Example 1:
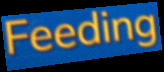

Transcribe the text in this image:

Feeding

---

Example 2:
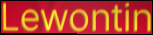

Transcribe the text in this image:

Lewontin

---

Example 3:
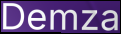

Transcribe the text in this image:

Demza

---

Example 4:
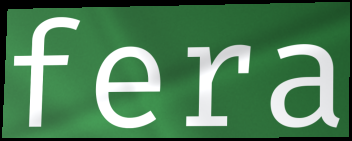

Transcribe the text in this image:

fera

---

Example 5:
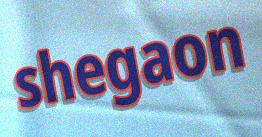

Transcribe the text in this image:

shegaon